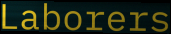
Laborers